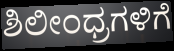
ಶಿಲೀಂಧ್ರಗಳಿಗೆ